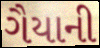
ગૈયાની